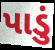
પાડું